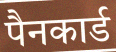
पैनकार्ड